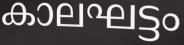
കാലഘട്ടം